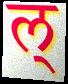
ल्